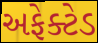
અફેક્ટેડ